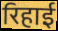
रिहाई